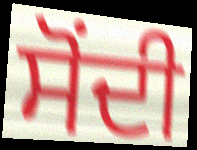
ਸੋਂਦੀ